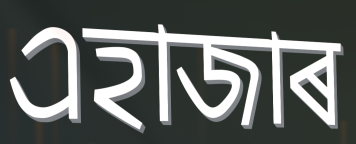
এহাজাৰ